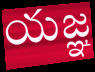
యజ్ఞ